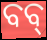
ବବ୍